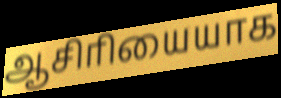
ஆசிரியையாக